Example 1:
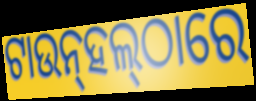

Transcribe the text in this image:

ଟାଉନ୍‌ହଲ୍‌ଠାରେ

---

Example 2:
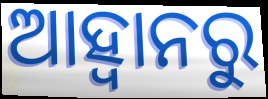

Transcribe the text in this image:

ଆହ୍ବାନରୁ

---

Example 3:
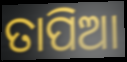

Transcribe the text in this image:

ତାପିଆ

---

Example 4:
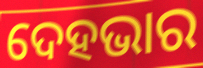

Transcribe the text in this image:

ଦେହଭାର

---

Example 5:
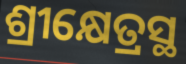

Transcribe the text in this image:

ଶ୍ରୀକ୍ଷେତ୍ରସ୍ଥ